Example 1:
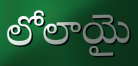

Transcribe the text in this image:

లోలాయై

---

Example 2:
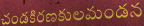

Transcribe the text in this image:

చండకిరణకులమండన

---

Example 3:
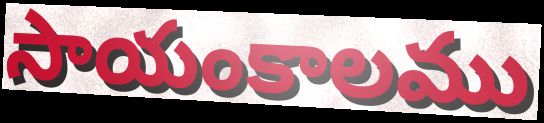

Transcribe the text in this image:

సాయంకాలము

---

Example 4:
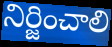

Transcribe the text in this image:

నిర్జించాలి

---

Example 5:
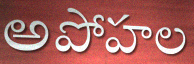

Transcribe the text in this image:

అపోహల